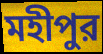
মহীপুর